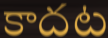
కాదట